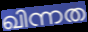
ഖിന്നത